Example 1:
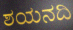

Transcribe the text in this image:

ಶಯನದಿ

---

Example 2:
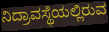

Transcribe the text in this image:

ನಿದ್ರಾವಸ್ಥೆಯಲ್ಲಿರುವ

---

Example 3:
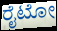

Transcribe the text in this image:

ರೈಟೋ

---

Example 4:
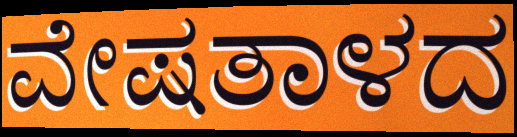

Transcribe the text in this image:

ವೇಷತಾಳದ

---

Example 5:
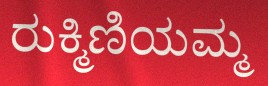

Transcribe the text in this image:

ರುಕ್ಮಿಣಿಯಮ್ಮ